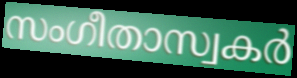
സംഗീതാസ്വകർ